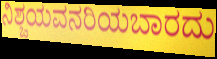
ನಿಶ್ಚಯವನರಿಯಬಾರದು